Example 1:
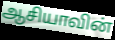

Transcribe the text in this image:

ஆசியாவின்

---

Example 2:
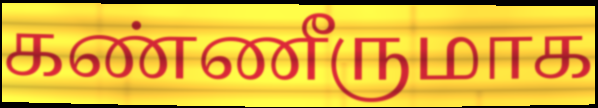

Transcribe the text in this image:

கண்ணீருமாக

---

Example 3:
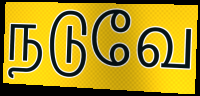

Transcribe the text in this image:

நடுவே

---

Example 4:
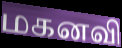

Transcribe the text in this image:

மகனவி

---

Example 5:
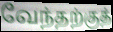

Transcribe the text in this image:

வேந்தற்குத்